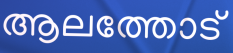
ആലത്തോട്